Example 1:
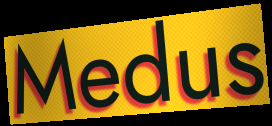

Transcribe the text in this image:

Medus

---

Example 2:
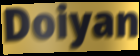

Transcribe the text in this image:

Doiyan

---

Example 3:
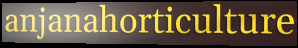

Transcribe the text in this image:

anjanahorticulture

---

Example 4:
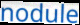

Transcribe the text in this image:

nodule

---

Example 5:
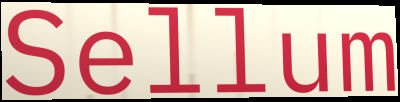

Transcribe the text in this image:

Sellum